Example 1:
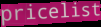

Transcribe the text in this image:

pricelist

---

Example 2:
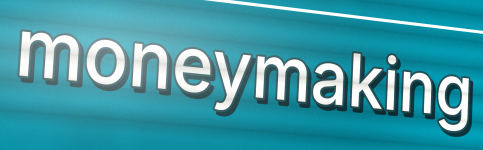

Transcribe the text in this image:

moneymaking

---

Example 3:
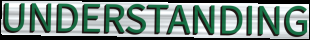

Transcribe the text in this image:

UNDERSTANDING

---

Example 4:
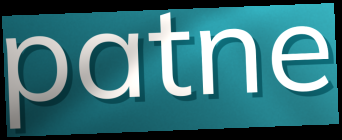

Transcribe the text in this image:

patne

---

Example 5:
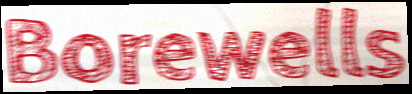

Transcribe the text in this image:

Borewells